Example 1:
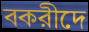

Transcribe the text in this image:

বকরীদে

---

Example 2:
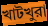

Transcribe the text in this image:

খাটখুরা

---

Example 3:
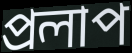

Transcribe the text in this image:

প্রলাপ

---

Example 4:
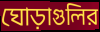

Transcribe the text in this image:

ঘোড়াগুলির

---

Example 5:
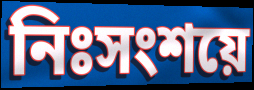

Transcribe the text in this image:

নিঃসংশয়ে